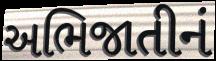
અભિજાતીનં